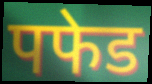
पफेड